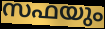
സഫയും